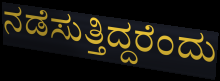
ನಡೆಸುತ್ತಿದ್ದರೆಂದು